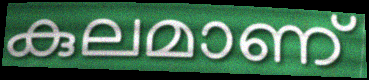
കുലമാണ്